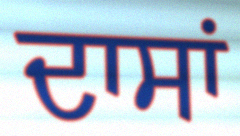
ਦਾਸਾਂ